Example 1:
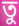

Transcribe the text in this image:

তু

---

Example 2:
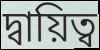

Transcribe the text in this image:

দ্বায়িত্ব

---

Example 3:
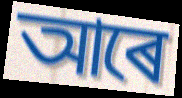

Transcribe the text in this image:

আৰে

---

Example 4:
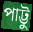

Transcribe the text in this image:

পাট্টু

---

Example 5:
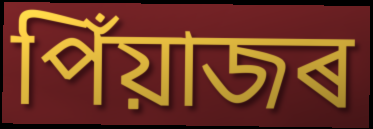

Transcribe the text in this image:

পিঁয়াজৰ